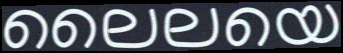
ലൈലയെ